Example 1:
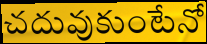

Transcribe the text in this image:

చదువుకుంటేనో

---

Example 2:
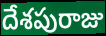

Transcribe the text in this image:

దేశపురాజు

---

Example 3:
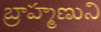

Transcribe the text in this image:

బ్రాహ్మణుని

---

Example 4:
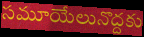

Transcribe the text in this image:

సమూయేలునొద్దకు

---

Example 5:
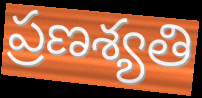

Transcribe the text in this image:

ప్రణశ్యతి